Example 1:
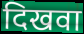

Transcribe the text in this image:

दिखवा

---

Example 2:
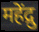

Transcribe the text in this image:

महेंद्रु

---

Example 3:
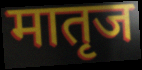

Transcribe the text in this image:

मातृज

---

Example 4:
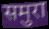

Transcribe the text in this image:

समुरा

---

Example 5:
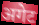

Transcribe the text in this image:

अगेट